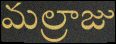
మల్రాజు